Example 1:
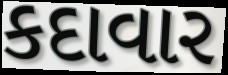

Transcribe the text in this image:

કદાવાર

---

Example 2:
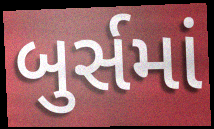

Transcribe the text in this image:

બુર્સમાં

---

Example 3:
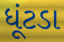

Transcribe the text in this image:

ધૂંટડા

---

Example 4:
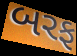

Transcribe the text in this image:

બરફ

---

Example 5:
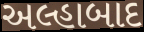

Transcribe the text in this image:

અલ્હાબાદ